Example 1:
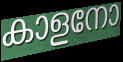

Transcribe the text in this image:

കാളനോ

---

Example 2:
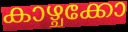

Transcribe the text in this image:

കാഴ്ചക്കോ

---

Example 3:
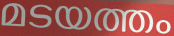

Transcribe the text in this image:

മടയത്തം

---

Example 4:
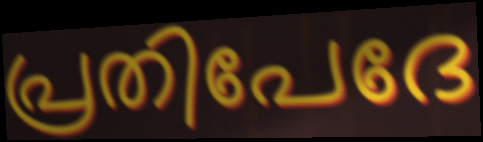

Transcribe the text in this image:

പ്രതിപേദേ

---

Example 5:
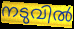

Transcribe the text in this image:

നടുവിൽ